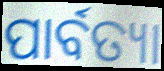
ପାର୍ବତ୍ୟା